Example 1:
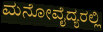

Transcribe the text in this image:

ಮನೋವೈದ್ಯರಲ್ಲಿ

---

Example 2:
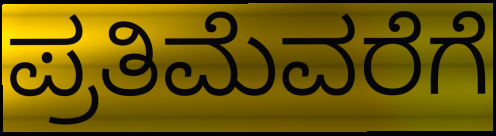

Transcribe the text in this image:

ಪ್ರತಿಮೆವರೆಗೆ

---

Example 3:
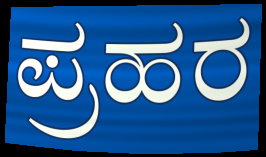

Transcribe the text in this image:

ಪ್ರಹರ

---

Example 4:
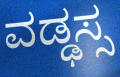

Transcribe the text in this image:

ವಡ್ಢಸ್ಸ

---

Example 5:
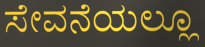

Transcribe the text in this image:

ಸೇವನೆಯಲ್ಲೂ